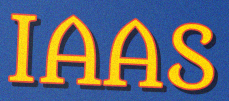
IAAS